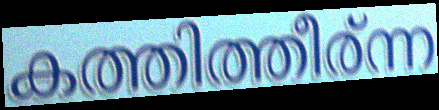
കത്തിത്തീര്ന്ന